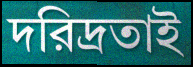
দরিদ্রতাই